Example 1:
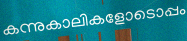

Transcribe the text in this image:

കന്നുകാലികളോടൊപ്പം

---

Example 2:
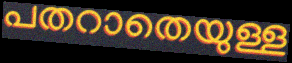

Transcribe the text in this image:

പതറാതെയുള്ള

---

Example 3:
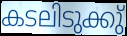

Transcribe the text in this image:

കടലിടുക്കു്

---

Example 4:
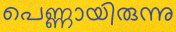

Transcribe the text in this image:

പെണ്ണായിരുന്നു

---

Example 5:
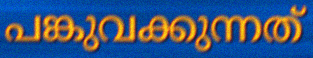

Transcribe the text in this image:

പങ്കുവക്കുന്നത്